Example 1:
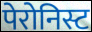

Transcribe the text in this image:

पेरोनिस्ट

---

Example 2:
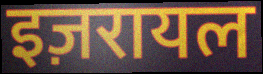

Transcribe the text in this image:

इज़रायल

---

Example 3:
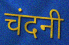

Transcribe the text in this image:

चंदनी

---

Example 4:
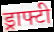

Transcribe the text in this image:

ड्राफ्टी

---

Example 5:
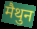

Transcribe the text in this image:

मैथुन